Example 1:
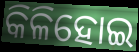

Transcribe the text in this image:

କିଳିହୋଇ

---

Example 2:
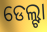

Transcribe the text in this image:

ଡେଲ୍ଟା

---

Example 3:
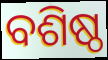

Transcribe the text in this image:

ବଶିଷ୍ଠ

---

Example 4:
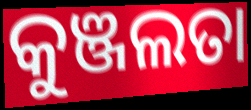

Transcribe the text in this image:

କୁଞ୍ଜଲତା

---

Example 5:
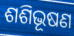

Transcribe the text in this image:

ଶଶିଭୂଷଣ